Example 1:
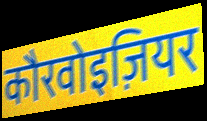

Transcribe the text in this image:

कौरवोइज़ियर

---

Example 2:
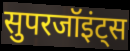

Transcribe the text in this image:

सुपरजॉइंट्स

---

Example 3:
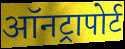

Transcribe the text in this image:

ऑनट्रापोर्ट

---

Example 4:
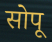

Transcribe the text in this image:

सोपू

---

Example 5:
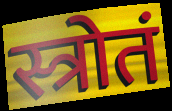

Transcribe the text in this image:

स्त्रोतं